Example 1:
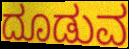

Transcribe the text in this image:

ದೂಡುವ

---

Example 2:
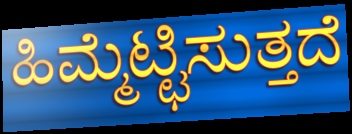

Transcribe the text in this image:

ಹಿಮ್ಮೆಟ್ಟಿಸುತ್ತದೆ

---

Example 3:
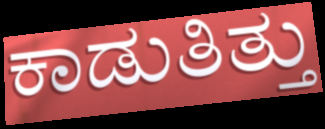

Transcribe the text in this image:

ಕಾಡುತಿತ್ತು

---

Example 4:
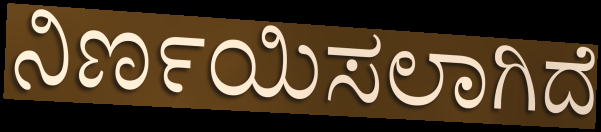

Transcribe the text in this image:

ನಿರ್ಣಯಿಸಲಾಗಿದೆ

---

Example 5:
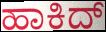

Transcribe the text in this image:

ಹಾಕಿದ್